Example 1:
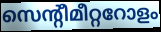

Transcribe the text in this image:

സെന്റീമീറ്ററോളം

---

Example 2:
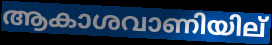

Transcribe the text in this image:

ആകാശവാണിയില്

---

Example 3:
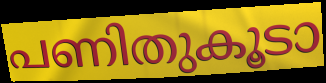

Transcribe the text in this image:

പണിതുകൂടാ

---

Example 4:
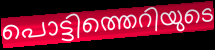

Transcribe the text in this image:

പൊട്ടിത്തെറിയുടെ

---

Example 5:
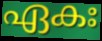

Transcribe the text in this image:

ഏകഃ